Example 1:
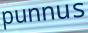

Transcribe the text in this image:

punnus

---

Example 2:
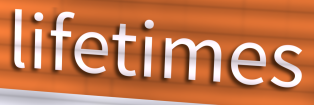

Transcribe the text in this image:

lifetimes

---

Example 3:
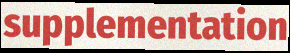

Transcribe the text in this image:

supplementation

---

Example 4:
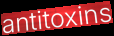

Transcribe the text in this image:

antitoxins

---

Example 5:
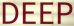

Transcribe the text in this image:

DEEP